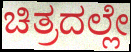
ಚಿತ್ರದಲ್ಲೇ